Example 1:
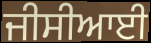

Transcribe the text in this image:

ਜੀਸੀਆਈ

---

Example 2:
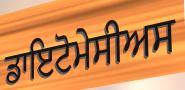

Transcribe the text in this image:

ਡਾਇਟੋਮੇਸੀਅਸ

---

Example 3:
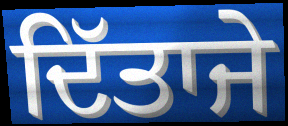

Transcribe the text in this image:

ਦਿੱਤਾਜੇ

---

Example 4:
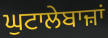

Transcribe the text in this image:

ਘੁਟਾਲੇਬਾਜ਼ਾਂ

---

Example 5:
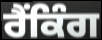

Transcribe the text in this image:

ਰੈੰਕਿੰਗ